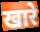
खारे